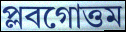
প্লবগোত্তম